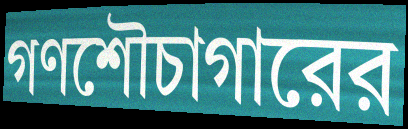
গণশৌচাগারের